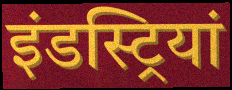
इंडस्ट्रियां